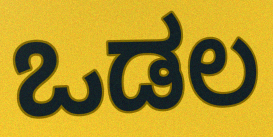
ಒಡಲ